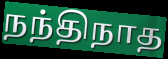
நந்திநாத